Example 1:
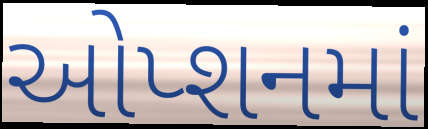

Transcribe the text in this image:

ઓપ્શનમાં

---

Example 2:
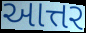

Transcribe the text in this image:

આત્તર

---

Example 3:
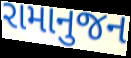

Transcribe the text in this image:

રામાનુજન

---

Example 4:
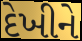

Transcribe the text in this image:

દેખીને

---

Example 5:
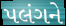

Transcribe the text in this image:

પલંગને